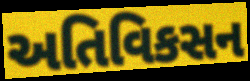
અતિવિકસન